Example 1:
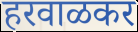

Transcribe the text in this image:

हरवाळकर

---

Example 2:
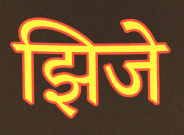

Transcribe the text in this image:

झिजे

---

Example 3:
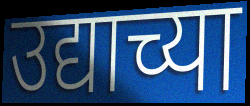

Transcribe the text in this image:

उद्याच्या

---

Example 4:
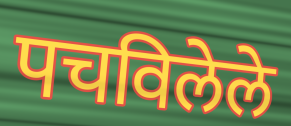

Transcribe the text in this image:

पचविलेले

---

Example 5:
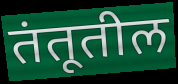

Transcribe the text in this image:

तंतूतील